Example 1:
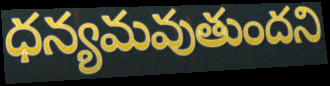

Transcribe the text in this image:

ధన్యమవుతుందని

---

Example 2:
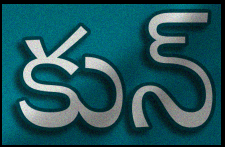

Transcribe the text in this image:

కున్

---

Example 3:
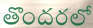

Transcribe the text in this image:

తొందరలో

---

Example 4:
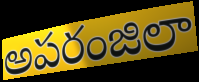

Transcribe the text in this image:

అపరంజిలా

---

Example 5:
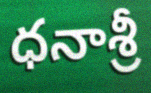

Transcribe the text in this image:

ధనాశ్రీ